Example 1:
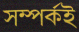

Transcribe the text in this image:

সম্পৰ্কই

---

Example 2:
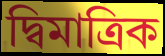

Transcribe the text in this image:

দ্বিমাত্ৰিক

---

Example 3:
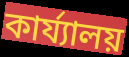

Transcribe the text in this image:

কাৰ্য্যালয়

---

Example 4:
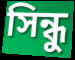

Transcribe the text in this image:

সিন্ধু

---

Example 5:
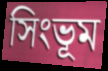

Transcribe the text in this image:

সিংভূম